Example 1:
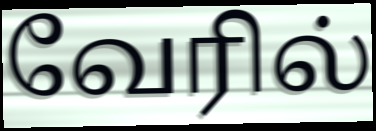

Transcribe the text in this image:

வேரில்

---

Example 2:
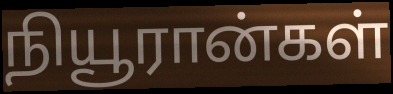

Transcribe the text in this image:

நியூரான்கள்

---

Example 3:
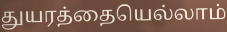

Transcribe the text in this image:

துயரத்தையெல்லாம்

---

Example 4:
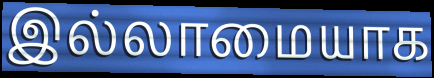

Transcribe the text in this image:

இல்லாமையாக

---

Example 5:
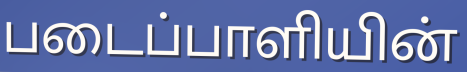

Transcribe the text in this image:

படைப்பாளியின்